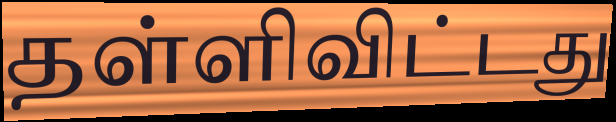
தள்ளிவிட்டது